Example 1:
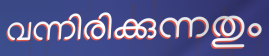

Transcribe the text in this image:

വന്നിരിക്കുന്നതും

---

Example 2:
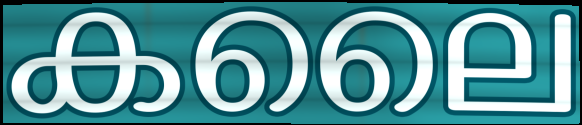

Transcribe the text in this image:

കലൈ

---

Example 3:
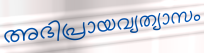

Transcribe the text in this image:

അഭിപ്രായവ്യത്യാസം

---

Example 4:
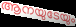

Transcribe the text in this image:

ആനയുടേയും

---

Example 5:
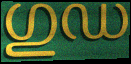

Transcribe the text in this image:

ഗുഡ